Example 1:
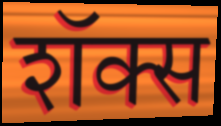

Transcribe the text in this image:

शॅक्स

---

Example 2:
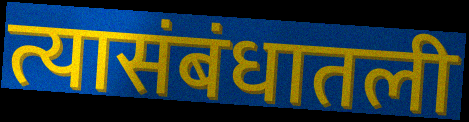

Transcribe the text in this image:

त्यासंबंधातली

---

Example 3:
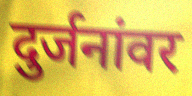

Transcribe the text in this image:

दुर्जनांवर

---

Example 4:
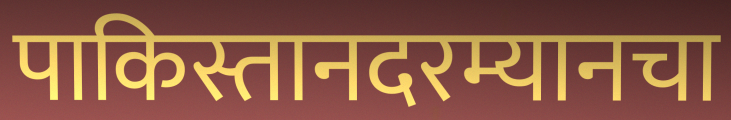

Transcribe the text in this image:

पाकिस्तानदरम्यानचा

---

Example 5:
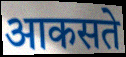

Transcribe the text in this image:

आकसते